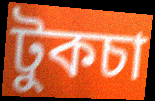
টুকচা